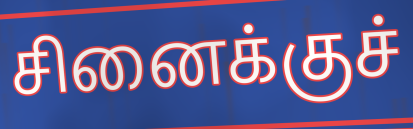
சினைக்குச்